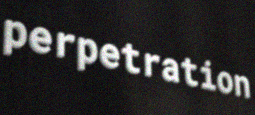
perpetration